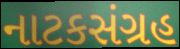
નાટકસંગ્રહ